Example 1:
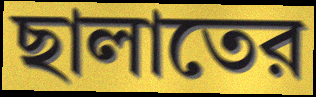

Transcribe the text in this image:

ছালাতের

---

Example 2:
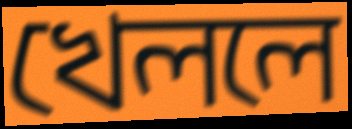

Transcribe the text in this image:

খেললে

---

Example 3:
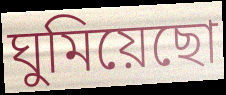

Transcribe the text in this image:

ঘুমিয়েছো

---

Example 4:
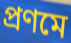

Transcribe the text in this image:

প্রণমে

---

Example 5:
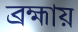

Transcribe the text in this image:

ব্রহ্মায়